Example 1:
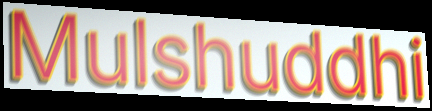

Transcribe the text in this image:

Mulshuddhi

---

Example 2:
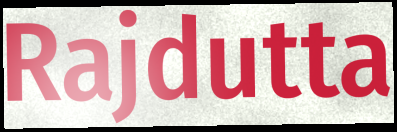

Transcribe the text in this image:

Rajdutta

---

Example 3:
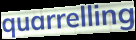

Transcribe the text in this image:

quarrelling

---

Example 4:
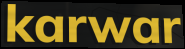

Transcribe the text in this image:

karwar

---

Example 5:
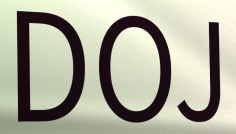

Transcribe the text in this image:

DOJ